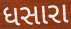
ધસારા